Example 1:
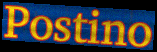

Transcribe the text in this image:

Postino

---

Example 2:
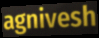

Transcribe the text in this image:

agnivesh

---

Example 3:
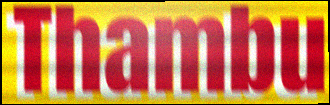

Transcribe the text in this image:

Thambu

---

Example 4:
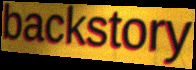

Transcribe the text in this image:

backstory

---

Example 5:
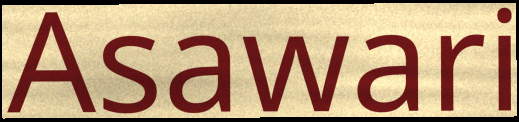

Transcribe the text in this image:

Asawari